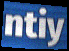
ntiy